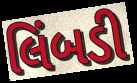
લિંબડી